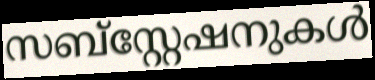
സബ്സ്റ്റേഷനുകൾ